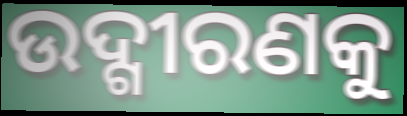
ଉଦ୍ଗୀରଣକୁ